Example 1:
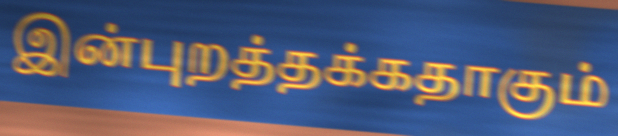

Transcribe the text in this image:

இன்புறத்தக்கதாகும்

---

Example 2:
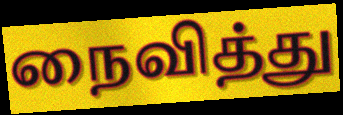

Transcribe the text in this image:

நைவித்து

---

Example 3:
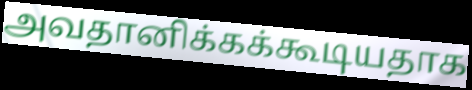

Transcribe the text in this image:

அவதானிக்கக்கூடியதாக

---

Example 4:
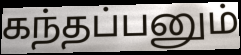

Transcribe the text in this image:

கந்தப்பனும்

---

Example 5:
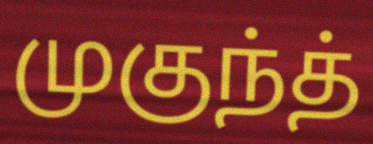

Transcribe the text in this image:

முகுந்த்